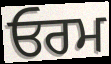
ਓਰਮ